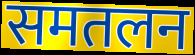
समतलन